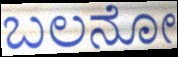
ಬಲನೋ